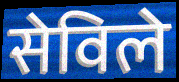
सेविले